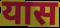
यास